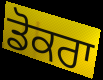
ਡੋਕਰਾ